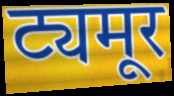
ट्यमूर